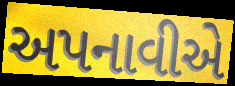
અપનાવીએ